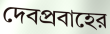
দেবপ্রবাহের